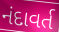
નંદાવર્ત